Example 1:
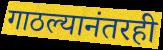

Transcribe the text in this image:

गाठल्यानंतरही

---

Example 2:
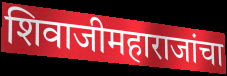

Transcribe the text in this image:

शिवाजीमहाराजांचा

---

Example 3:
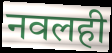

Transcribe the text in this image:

नवलही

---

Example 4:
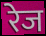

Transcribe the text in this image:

रेज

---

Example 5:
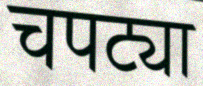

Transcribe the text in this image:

चपट्या